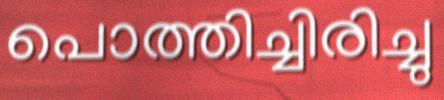
പൊത്തിച്ചിരിച്ചു